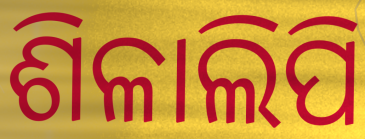
ଶିଳାଲିପି